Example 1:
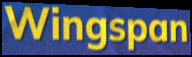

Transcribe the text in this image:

Wingspan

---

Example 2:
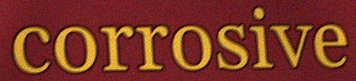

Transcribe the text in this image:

corrosive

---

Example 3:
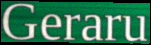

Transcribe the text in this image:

Geraru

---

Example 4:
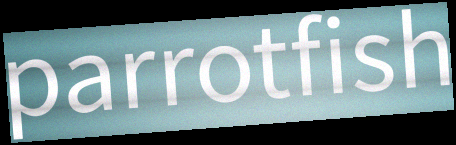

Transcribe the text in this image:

parrotfish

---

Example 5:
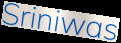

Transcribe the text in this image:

Sriniwas